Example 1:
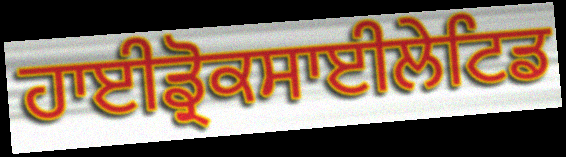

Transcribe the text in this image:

ਹਾਈਡ੍ਰੋਕਸਾਈਲੇਟਿਡ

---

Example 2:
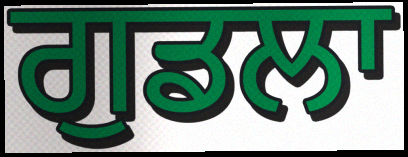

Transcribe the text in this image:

ਗੁਡਲਾ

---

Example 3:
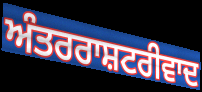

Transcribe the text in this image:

ਅੰਤਰਰਾਸ਼ਟਰੀਵਾਦ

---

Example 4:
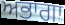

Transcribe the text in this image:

ਅਭਾਗਾ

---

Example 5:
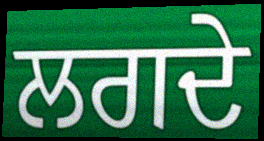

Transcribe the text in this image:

ਲਗਦੇ